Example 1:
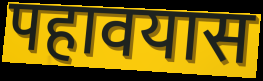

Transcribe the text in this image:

पहावयास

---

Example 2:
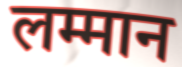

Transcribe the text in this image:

लम्मान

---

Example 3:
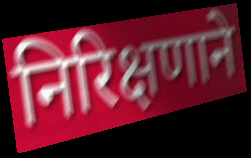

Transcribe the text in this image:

निरिक्षणाने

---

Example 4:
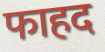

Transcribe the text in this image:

फाहद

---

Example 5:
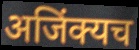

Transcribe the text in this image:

अजिंक्यच